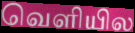
வெளியில